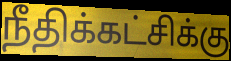
நீதிக்கட்சிக்கு